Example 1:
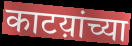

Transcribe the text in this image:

काटय़ांच्या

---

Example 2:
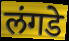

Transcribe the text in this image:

लंगडे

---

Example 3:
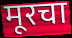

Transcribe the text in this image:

मूरचा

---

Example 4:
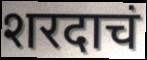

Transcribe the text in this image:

शरदाचं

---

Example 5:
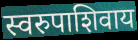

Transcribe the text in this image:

स्वरुपाशिवाय